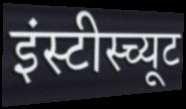
इंस्टीस्च्यूट